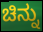
ಚಿನ್ನು